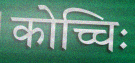
कोच्चिः